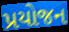
પ્રયોજન